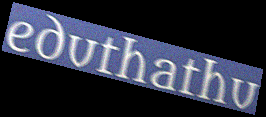
eduthathu